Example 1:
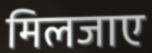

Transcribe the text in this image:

मिलजाए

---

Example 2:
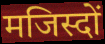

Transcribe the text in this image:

मजिस्दों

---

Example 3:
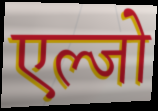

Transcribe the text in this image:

एल्जो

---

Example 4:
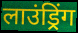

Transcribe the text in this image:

लाउंड्रिंग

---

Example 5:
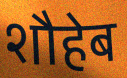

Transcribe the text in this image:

शौहेब